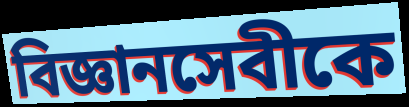
বিজ্ঞানসেবীকে